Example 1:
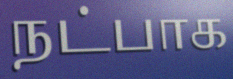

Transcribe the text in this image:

நட்பாக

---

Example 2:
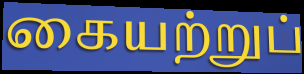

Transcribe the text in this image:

கையற்றுப்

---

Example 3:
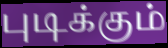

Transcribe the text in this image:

புடிக்கும்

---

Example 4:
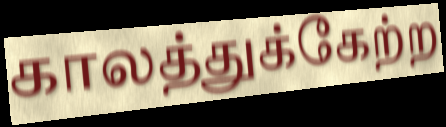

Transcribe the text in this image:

காலத்துக்கேற்ற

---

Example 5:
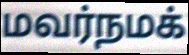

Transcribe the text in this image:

மவர்நமக்